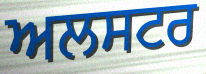
ਅਲਸਟਰ